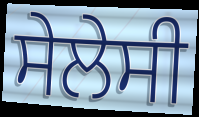
ਸੇਲੇਸੀ